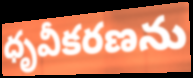
ధృవీకరణను